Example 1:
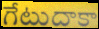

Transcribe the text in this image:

గేటుదాకా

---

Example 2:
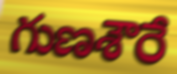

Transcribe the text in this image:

గుణశౌరే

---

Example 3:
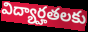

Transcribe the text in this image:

విద్యార్హతలకు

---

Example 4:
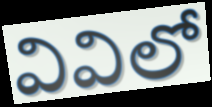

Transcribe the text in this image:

వివిలో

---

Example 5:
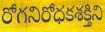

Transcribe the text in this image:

రోగనిరోధకశక్తిని